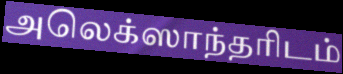
அலெக்ஸாந்தரிடம்